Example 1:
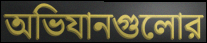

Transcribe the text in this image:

অভিযানগুলোর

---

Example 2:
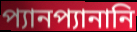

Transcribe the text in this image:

প্যানপ্যানানি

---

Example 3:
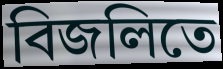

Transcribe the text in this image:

বিজলিতে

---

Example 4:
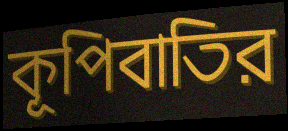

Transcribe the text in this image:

কূপিবাতির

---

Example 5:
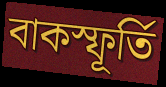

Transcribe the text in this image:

বাকস্ফূর্তি